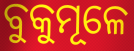
ବୁକୁମୂଳେ